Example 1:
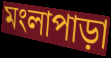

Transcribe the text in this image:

মংলাপাড়া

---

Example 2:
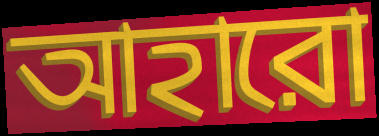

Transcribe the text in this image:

আহারো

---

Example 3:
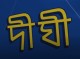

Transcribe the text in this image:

দীঘী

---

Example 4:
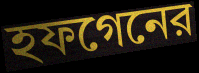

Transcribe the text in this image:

হফগেনের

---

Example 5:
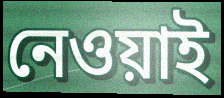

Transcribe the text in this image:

নেওয়াই